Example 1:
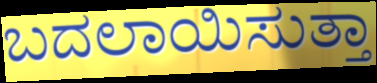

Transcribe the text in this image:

ಬದಲಾಯಿಸುತ್ತಾ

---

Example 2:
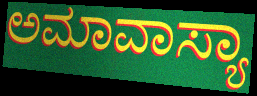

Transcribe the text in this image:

ಅಮಾವಾಸ್ಯಾ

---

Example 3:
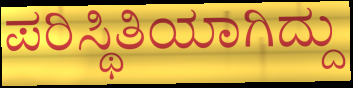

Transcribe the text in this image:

ಪರಿಸ್ಥಿತಿಯಾಗಿದ್ದು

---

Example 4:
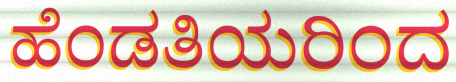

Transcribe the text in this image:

ಹೆಂಡತಿಯರಿಂದ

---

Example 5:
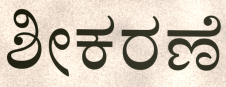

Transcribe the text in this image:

ಶೀಕರಣೆ